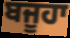
ਬਜੂਹਾ